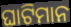
ଘାଟିମାନ